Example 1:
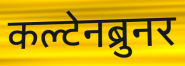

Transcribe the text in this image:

कल्टेनब्रुनर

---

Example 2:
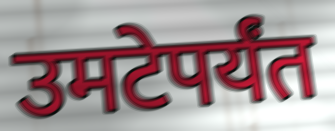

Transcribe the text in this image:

उमटेपर्यंत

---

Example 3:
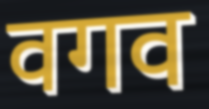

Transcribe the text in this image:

वगव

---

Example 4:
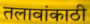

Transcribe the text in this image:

तलावांकाठी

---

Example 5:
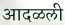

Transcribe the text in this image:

आदळली